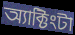
অ্যাক্টিংটা